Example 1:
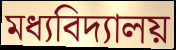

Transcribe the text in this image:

মধ্যবিদ্যালয়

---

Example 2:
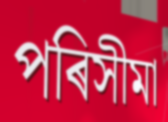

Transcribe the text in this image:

পৰিসীমা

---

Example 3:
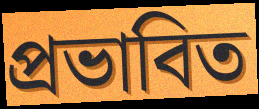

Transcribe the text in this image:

প্ৰভাবিত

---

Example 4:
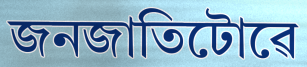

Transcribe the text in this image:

জনজাতিটোৱে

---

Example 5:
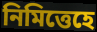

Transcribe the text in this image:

নিমিত্তেহে